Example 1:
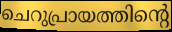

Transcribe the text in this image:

ചെറുപ്രായത്തിന്റെ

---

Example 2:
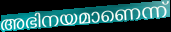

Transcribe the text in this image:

അഭിനയമാണെന്ന്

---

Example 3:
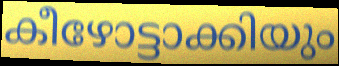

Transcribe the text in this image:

കീഴോട്ടാക്കിയും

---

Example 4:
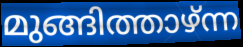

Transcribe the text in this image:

മുങ്ങിത്താഴ്ന്ന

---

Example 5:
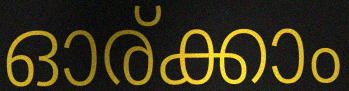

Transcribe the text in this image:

ഓര്ക്കാം